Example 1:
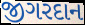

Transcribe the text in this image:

જીગરદાન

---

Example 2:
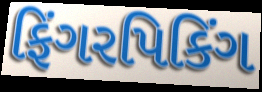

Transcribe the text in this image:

ફિંગરપિકિંગ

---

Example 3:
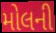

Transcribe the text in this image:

મોલની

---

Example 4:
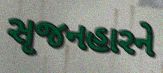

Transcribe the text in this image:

સૃજનહારને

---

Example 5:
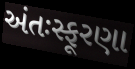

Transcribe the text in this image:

અંતઃસ્ફૂરણા